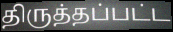
திருத்தப்பட்ட